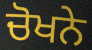
ਚੋਖਨੇ